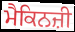
ਮੈਕਿਨਜ਼ੀ